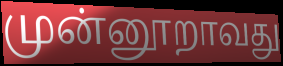
முன்னூறாவது